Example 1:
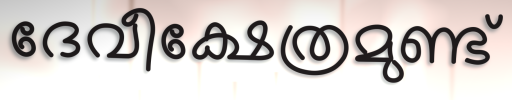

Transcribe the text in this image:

ദേവീക്ഷേത്രമുണ്ട്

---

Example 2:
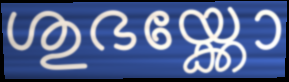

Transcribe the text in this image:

ശുഭയ്ക്കോ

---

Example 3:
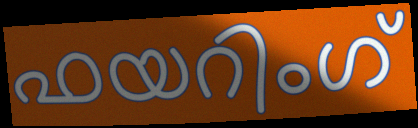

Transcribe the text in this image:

ഫയറിംഗ്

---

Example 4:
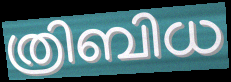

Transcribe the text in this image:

ത്രിബിധ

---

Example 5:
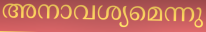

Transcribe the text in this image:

അനാവശ്യമെന്നു